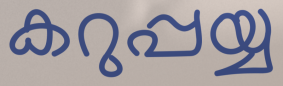
കറുപ്പയ്യ